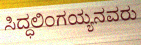
ಸಿದ್ಧಲಿಂಗಯ್ಯನವರು